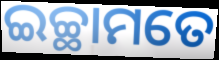
ଇଚ୍ଛାମତେ